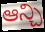
ఆన్చి